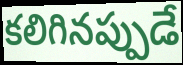
కలిగినప్పుడే